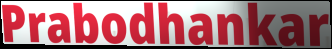
Prabodhankar